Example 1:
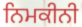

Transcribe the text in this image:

ਨਿਮਕੀਨੀ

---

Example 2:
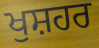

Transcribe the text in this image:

ਖੁਸ਼ਹਰ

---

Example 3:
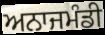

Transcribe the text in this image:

ਅਨਾਜਮੰਡੀ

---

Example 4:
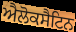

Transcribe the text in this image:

ਐਲੋਕਸੈਟਿਨ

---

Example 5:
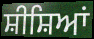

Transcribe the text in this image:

ਸ਼ੀਸ਼ਿਆਂ